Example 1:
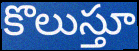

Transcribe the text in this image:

కొలుస్తూ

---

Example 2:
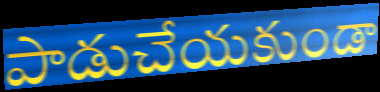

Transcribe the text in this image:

పాడుచేయకుండా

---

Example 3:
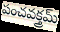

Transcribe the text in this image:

పంచవక్త్రమ్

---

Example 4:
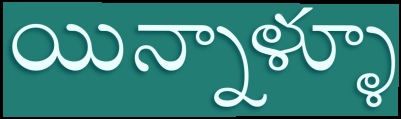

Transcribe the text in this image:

యిన్నాళ్ళూ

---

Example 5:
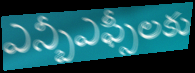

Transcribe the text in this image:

ఎన్బీఎఫ్సీలకు